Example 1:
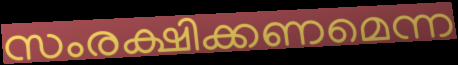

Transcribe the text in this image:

സംരക്ഷിക്കണമെന്ന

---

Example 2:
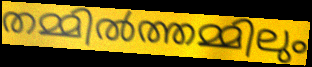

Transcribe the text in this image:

തമ്മിൽത്തമ്മിലും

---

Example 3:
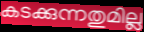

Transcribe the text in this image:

കടക്കുന്നതുമില്ല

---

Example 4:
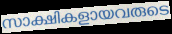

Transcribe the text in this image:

സാക്ഷികളായവരുടെ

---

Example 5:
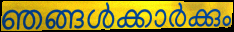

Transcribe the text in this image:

ഞങ്ങൾക്കാർക്കും